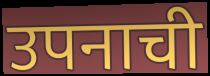
उपनाची